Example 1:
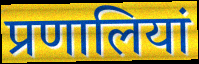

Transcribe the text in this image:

प्रणालियां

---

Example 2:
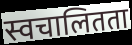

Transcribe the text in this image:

स्वचालितता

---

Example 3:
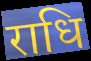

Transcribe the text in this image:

राधि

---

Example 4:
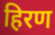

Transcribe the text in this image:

हिरण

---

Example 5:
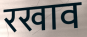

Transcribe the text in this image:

रखाव